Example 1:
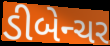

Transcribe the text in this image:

ડીબેન્ચર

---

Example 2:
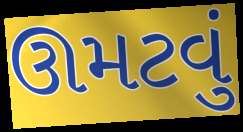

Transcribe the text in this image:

ઊમટવું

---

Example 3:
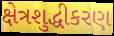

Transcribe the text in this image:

ક્ષેત્રશુદ્ધીકરણ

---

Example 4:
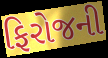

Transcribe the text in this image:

ફિરોજની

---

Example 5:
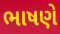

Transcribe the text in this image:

ભાષણે